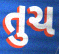
તુચ